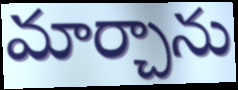
మార్చాను